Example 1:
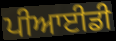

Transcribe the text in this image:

ਪੀਆਈਡੀ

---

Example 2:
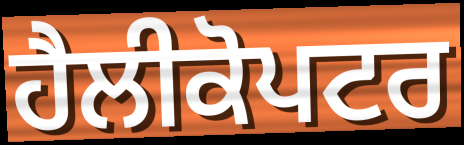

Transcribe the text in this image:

ਹੈਲੀਕੋਪਟਰ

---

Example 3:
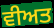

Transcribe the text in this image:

ਵੀਅਤ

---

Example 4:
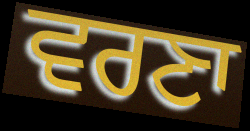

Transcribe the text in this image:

ਵਰਣਾ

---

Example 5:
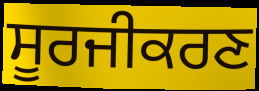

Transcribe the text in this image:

ਸੂਰਜੀਕਰਣ